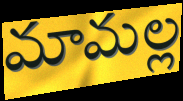
మామల్ల